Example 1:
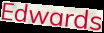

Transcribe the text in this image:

Edwards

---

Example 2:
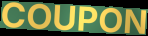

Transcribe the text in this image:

COUPON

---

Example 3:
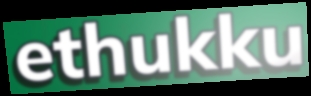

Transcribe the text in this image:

ethukku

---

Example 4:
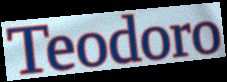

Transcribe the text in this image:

Teodoro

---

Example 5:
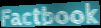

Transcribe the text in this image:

Factbook